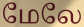
மேலே